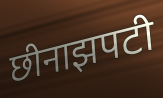
छीनाझपटी